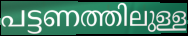
പട്ടണത്തിലുള്ള